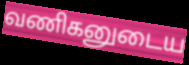
வணிகனுடைய